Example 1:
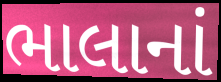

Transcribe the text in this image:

ભાલાનાં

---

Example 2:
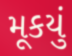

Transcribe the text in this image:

મૂકયું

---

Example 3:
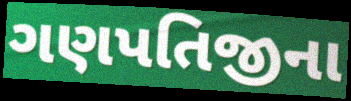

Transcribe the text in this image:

ગણપતિજીના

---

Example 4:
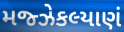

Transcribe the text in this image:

મજ્ઝેકલ્યાણં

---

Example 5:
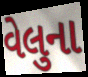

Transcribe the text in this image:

વેલુના